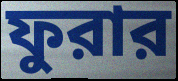
ফুরার